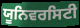
ਯੂਨਿਵਰਸਿਟੀ